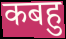
कबहु